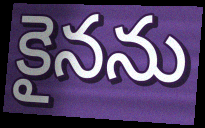
కైనను